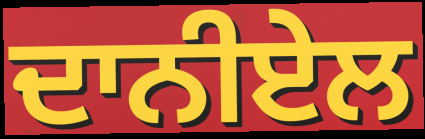
ਦਾਨੀਏਲ